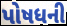
પોષધની